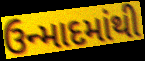
ઉન્માદમાંથી